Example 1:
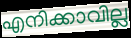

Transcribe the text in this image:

എനിക്കാവില്ല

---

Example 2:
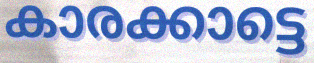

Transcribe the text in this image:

കാരക്കാട്ടെ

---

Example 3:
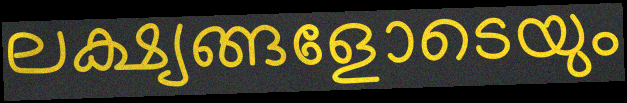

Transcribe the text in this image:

ലക്ഷ്യങ്ങളോടെയും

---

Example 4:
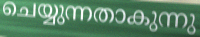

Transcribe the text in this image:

ചെയ്യുന്നതാകുന്നു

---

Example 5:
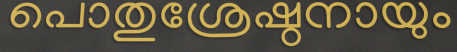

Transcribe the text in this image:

പൊതുശ്രേഷ്ഠനായും